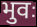
भुवः